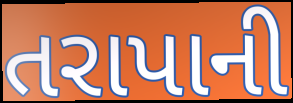
તરાપાની